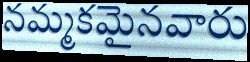
నమ్మకమైనవారు